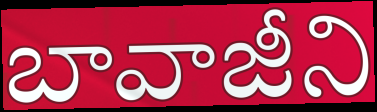
బావాజీని